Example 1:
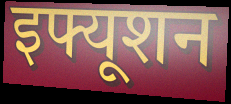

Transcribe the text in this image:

इफ्यूशन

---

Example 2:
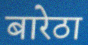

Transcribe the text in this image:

बारेठा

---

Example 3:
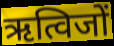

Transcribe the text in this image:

ऋत्विजों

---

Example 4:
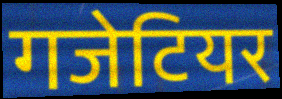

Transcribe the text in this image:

गजेटियर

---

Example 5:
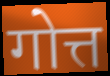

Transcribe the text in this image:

गोत्त